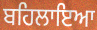
ਬਹਿਲਾਇਆ